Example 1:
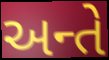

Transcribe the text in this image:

અન્તે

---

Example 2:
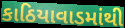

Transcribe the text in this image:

કાઠિયાવાડમાંથી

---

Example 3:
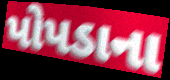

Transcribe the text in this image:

પોપડાના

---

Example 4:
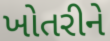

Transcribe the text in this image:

ખોતરીને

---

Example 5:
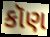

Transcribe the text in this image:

કૉણ